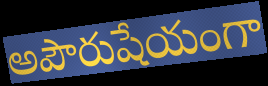
అపౌరుషేయంగా